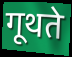
गूथते